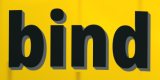
bind